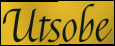
Utsobe